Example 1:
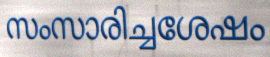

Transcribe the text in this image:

സംസാരിച്ചശേഷം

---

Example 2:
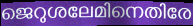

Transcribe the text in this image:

ജെറുശലേമിനെതിരേ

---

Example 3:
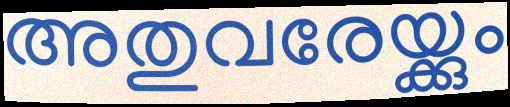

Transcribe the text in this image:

അതുവരേയ്ക്കും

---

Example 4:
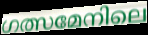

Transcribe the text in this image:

ഗത്സമേനിലെ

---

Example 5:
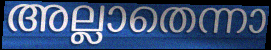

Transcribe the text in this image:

അല്ലാതെന്നാ